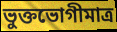
ভুক্তভোগীমাত্র